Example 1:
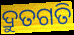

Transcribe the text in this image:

ଦ୍ରୁତଗତି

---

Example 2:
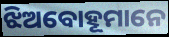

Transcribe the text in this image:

ଝିଅବୋହୂମାନେ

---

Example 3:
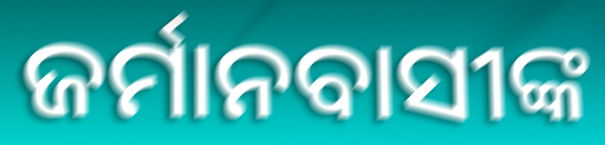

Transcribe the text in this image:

ଜର୍ମାନବାସୀଙ୍କ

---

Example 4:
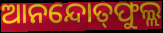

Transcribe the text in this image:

ଆନନ୍ଦୋତ୍‍ଫୁଲ୍ଲ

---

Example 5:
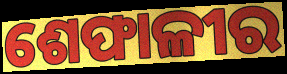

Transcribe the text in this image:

ଶେଫାଳୀର